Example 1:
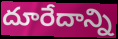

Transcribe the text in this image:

దూరేదాన్ని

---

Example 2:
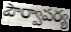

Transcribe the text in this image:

పౌర్వాపర్య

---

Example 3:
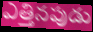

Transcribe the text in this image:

ఎత్తినపుడు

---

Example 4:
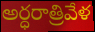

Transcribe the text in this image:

అర్ధరాత్రివేళ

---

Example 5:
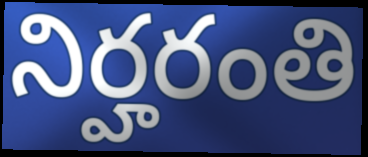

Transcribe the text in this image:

నిర్హరంతి